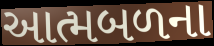
આત્મબળના